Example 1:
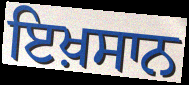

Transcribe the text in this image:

ਇਖ਼ਸਾਨ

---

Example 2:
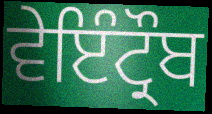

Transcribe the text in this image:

ਵੇਇੰਟ੍ਰੌਬ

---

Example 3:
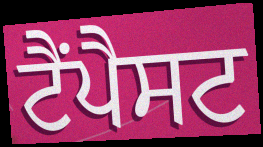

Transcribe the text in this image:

ਟੈਂਪੈਸਟ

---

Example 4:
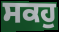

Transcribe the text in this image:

ਸਕਹੁ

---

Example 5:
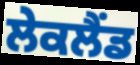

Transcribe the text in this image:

ਲੇਕਲੈਂਡ